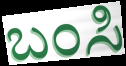
ಬಂಸಿ